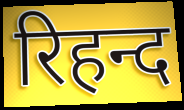
रिहन्द